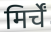
मिर्चें